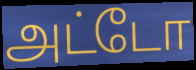
அட்டோ